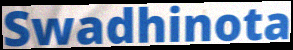
Swadhinota